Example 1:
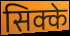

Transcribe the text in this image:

सिक्के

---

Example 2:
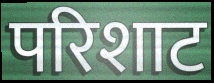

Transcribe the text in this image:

परिशाट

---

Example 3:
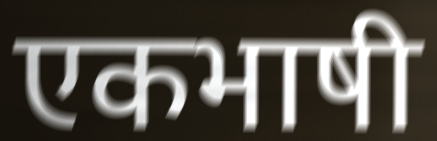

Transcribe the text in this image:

एकभाषी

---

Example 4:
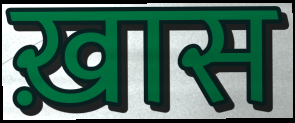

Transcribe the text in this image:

ख़ास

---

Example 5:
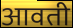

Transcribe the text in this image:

आवती